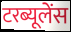
टरब्यूलेंस